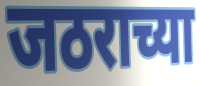
जठराच्या